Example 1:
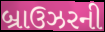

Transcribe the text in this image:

બ્રાઉઝરની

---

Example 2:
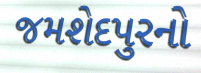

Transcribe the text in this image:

જમશેદપુરનો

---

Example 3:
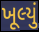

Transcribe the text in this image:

ખૂલ્યું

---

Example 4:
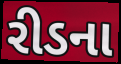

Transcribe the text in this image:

રીડના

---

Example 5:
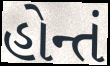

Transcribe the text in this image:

હોન્તં